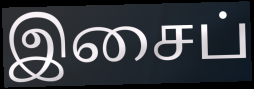
இசைப்